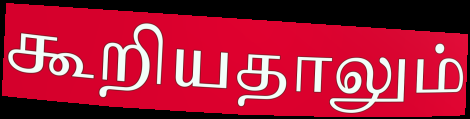
கூறியதாலும்